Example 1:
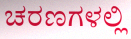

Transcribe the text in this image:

ಚರಣಗಳಲ್ಲಿ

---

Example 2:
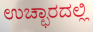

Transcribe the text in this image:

ಉಚ್ಛಾರದಲ್ಲಿ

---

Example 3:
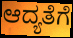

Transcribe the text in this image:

ಆದ್ಯತೆಗೆ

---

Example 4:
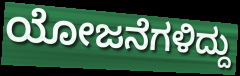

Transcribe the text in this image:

ಯೋಜನೆಗಳಿದ್ದು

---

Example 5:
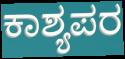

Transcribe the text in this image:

ಕಾಶ್ಯಪರ